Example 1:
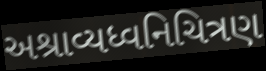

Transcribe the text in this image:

અશ્રાવ્યધ્વનિચિત્રણ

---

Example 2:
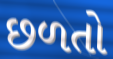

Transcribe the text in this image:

છળતો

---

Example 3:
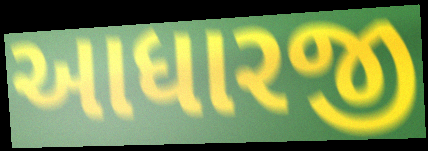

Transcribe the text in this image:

આધારજી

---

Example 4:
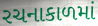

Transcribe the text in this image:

રચનાકાળમાં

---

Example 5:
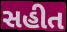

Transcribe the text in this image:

સહીત